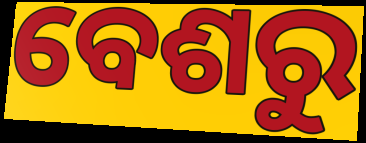
ବେଶରୁ